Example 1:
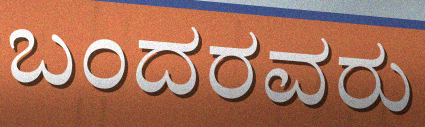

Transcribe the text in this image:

ಬಂದರವರು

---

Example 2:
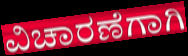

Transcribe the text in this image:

ವಿಚಾರಣೆಗಾಗಿ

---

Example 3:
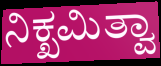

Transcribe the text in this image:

ನಿಕ್ಖಮಿತ್ವಾ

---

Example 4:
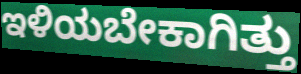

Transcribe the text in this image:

ಇಳಿಯಬೇಕಾಗಿತ್ತು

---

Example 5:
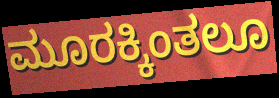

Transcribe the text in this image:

ಮೂರಕ್ಕಿಂತಲೂ